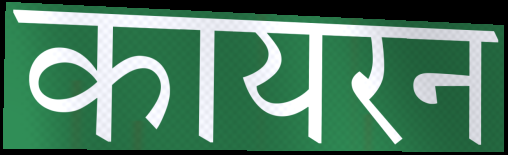
कायरन